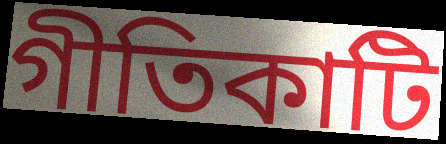
গীতিকাটি